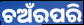
ଚଅଁରପରି